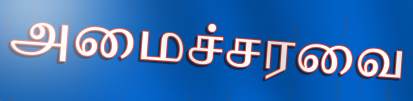
அமைச்சரவை